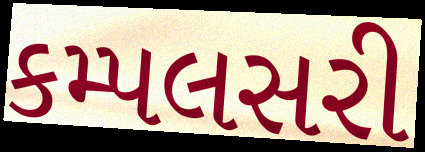
કમ્પલસરી